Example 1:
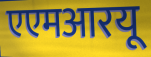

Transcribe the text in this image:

एएमआरयू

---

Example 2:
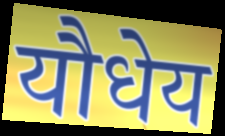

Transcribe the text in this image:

यौधेय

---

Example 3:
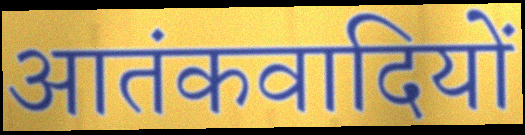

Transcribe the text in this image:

आतंकवादियों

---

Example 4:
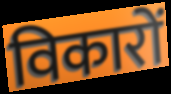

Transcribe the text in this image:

विकारों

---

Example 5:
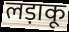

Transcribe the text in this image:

लड़ाकू